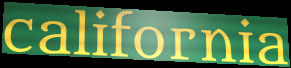
california